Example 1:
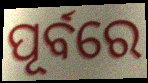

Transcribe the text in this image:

ପୂର୍ବରେ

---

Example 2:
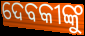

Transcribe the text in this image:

ଦେବକୀଙ୍କୁ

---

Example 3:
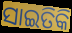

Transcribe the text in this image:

ସାଇତିକି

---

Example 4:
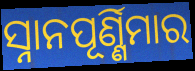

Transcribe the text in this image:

ସ୍ନାନପୂର୍ଣ୍ଣିମାର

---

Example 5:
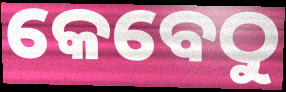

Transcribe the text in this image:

କେବେଠୁ